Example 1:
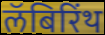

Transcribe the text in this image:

लॅबिरिंथ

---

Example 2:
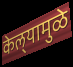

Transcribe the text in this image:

केल्यामुळे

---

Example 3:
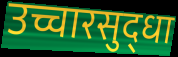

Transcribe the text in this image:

उच्चारसुद्धा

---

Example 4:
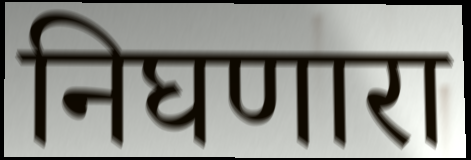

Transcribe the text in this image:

निघणारा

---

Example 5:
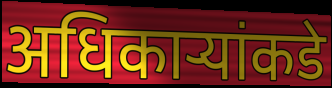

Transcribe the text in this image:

अधिकाऱ्यांकडे